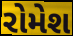
રોમેશ